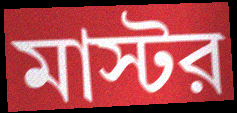
মাস্টর